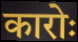
कारोः